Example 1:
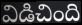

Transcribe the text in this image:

విడిచింది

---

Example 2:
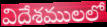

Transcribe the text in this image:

విదేశములలో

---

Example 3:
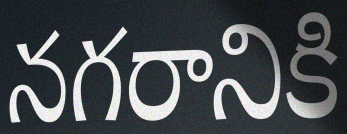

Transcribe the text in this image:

నగరానికి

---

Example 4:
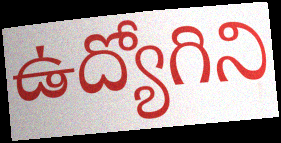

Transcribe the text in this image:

ఉద్యోగిని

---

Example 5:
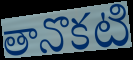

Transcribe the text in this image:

తానొకటి